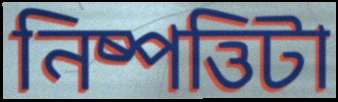
নিষ্পত্তিটা